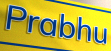
Prabhu